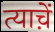
त्याच़ें